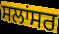
ਸਲਾਂਸਰ